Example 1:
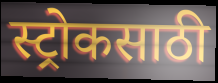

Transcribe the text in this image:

स्ट्रोकसाठी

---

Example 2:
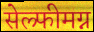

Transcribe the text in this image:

सेल्फीमग्न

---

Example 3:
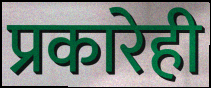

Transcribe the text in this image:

प्रकारेही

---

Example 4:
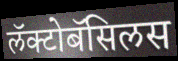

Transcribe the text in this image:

लॅक्टोबॅसिलस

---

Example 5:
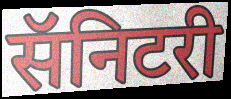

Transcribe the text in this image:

सॅनिटरी